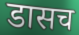
डासच